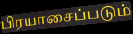
பிரயாசைப்படும்